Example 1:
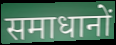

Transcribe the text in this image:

समाधानों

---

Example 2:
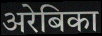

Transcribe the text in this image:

अरेबिका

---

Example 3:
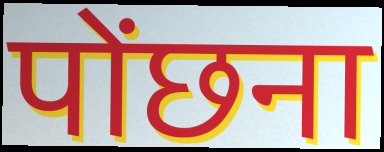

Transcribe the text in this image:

पोंछना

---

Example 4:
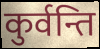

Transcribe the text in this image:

कुर्वन्ति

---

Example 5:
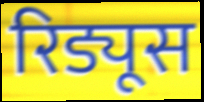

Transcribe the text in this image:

रिड्यूस